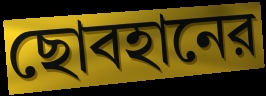
ছোবহানের